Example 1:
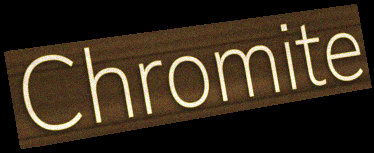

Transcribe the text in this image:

Chromite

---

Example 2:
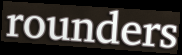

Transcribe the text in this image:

rounders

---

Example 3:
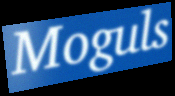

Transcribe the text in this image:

Moguls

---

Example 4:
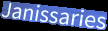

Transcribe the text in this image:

Janissaries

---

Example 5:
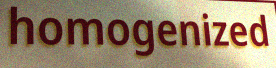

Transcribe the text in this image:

homogenized